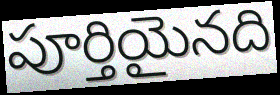
పూర్తియైనది